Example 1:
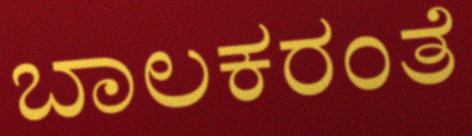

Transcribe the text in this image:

ಬಾಲಕರಂತೆ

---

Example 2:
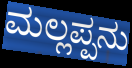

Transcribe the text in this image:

ಮಲ್ಲಪ್ಪನು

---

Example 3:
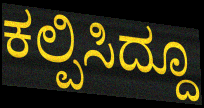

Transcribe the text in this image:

ಕಲ್ಪಿಸಿದ್ದೂ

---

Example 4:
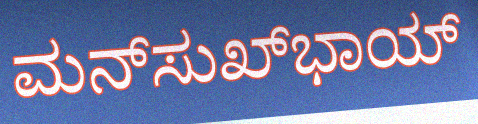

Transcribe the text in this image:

ಮನ್‌ಸುಖ್‌ಭಾಯ್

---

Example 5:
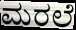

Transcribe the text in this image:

ಮರಲೆ